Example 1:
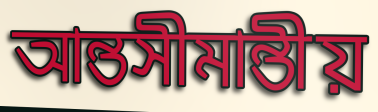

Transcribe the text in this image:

আন্তসীমান্তীয়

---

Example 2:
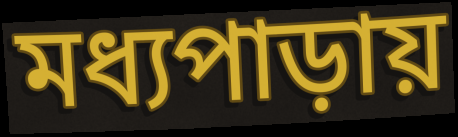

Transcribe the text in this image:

মধ্যপাড়ায়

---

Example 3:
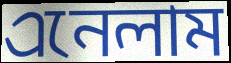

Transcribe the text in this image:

এনেলাম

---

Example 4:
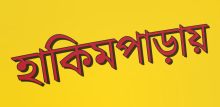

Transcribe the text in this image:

হাকিমপাড়ায়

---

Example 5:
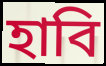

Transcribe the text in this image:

হাবি